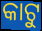
କାଟୁ